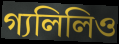
গ্যলিলিও